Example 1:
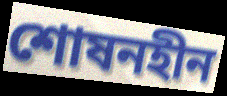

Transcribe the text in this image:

শোষনহীন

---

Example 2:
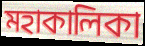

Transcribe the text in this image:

মহাকালিকা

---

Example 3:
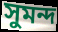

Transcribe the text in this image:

সুমন্দ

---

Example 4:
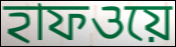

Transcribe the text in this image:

হাফওয়ে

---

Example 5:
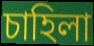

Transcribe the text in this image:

চাহিলা